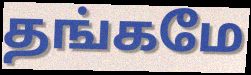
தங்கமே